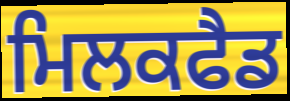
ਮਿਲਕਫੈਡ